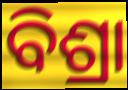
ବିଶ୍ରା